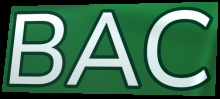
BAC